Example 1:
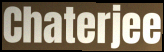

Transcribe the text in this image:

Chaterjee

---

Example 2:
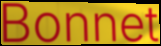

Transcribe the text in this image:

Bonnet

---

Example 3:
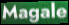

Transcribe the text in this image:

Magale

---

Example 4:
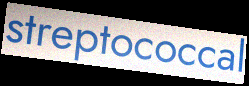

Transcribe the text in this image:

streptococcal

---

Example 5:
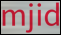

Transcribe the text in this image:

mjid